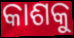
କାଶକୁ